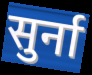
सुर्ना